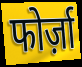
फोर्ज़ा